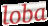
loba